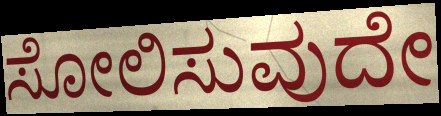
ಸೋಲಿಸುವುದೇ